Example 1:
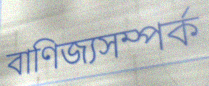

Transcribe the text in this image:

বাণিজ্যসম্পর্ক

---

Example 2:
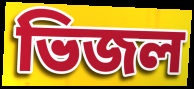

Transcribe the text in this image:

ভিজল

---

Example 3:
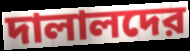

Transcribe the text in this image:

দালালদের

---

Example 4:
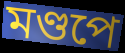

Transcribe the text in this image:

মণ্ডপে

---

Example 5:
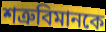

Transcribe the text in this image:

শত্রুবিমানকে